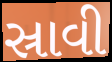
સ્રાવી